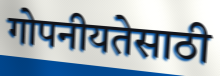
गोपनीयतेसाठी